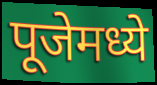
पूजेमध्ये